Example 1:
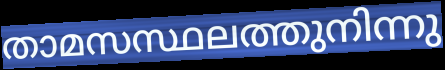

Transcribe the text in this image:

താമസസ്ഥലത്തുനിന്നു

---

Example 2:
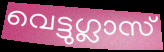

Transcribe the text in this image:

വെട്ടുഗ്ലാസ്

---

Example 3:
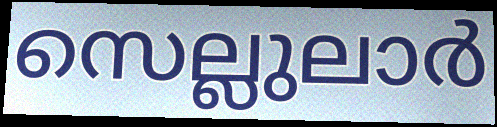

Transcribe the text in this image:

സെല്ലുലാർ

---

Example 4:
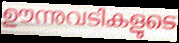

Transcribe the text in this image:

ഊന്നുവടികളുടെ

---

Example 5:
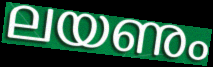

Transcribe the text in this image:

ലയണും